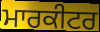
ਮਾਰਕੀਟਰ